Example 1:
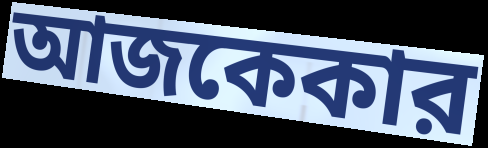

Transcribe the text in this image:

আজকেকার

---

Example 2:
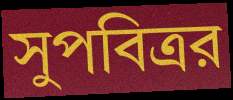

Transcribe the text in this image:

সুপবিত্রর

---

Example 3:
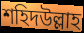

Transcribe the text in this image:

শহিদউল্লাহ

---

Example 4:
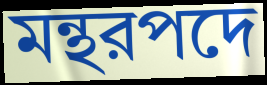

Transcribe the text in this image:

মন্থরপদে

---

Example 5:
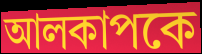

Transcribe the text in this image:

আলকাপকে